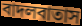
বাদলবাতাস